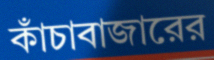
কাঁচাবাজারের